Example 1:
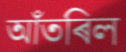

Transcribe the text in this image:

আঁতৰিল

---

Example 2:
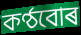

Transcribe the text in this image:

কণ্ঠবোৰ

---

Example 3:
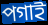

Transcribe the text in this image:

পগাই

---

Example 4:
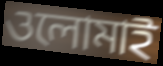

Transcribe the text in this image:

ওলোমাই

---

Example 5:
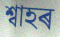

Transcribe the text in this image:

শ্বাহৰ